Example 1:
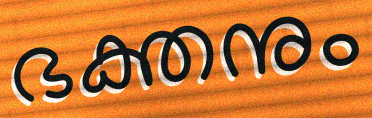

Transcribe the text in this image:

ഭക്തനും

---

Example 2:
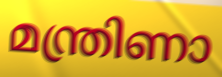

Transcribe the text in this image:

മന്ത്രിണാ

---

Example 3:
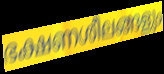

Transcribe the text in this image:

ഭക്ഷണശീലങ്ങളും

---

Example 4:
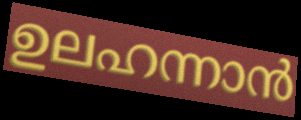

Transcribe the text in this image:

ഉലഹന്നാൻ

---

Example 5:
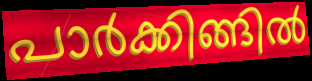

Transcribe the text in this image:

പാർക്കിങ്ങിൽ